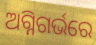
ଅଗ୍ନିଗର୍ଭରେ